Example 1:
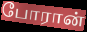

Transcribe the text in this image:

போரான்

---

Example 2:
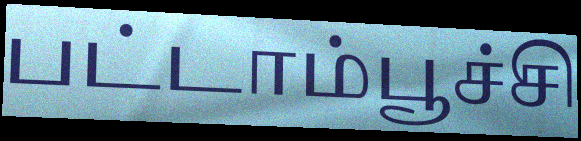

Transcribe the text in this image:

பட்டாம்பூச்சி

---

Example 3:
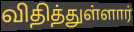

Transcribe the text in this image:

விதித்துள்ளார்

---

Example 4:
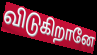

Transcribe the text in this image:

விடுகிறானே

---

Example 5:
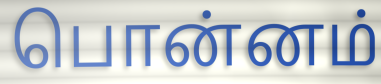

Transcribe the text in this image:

பொன்னம்